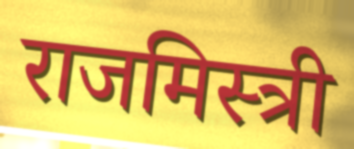
राजमिस्त्री